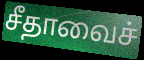
சீதாவைச்